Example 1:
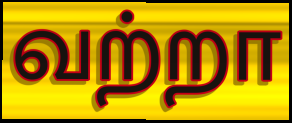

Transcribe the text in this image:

வற்றா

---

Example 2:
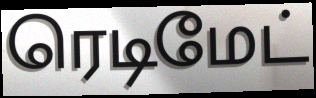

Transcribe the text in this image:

ரெடிமேட்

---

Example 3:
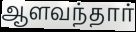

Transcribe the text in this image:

ஆளவந்தார்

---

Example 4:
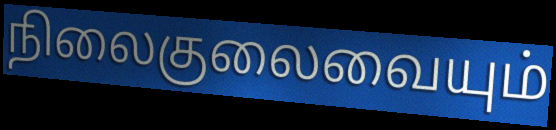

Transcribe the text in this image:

நிலைகுலைவையும்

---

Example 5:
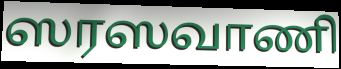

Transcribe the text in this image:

ஸரஸவாணி